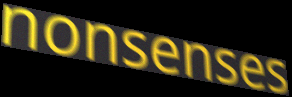
nonsenses